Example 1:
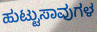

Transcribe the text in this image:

ಹುಟ್ಟುಸಾವುಗಳ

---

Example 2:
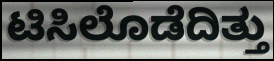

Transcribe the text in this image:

ಟಿಸಿಲೊಡೆದಿತ್ತು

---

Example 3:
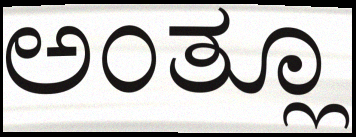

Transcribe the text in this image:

ಅಂತ್ಲೂ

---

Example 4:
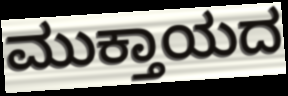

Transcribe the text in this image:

ಮುಕ್ತಾಯದ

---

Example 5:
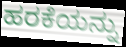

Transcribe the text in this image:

ಹರಕೆಯನ್ನು